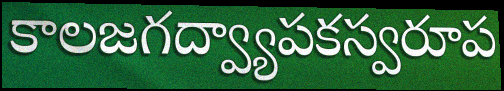
కాలజగద్వ్యాపకస్వరూప